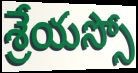
శ్రేయస్సో